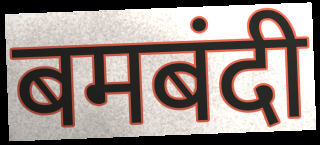
बमबंदी